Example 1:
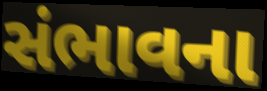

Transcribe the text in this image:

સંભાવના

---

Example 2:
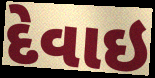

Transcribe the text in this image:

દેવાઇ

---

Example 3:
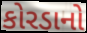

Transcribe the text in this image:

કોરડાનો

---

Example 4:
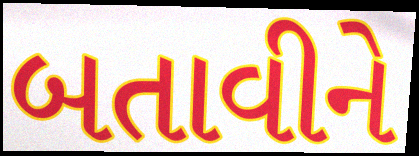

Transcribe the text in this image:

બતાવીને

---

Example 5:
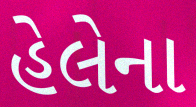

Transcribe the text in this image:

હેલેના